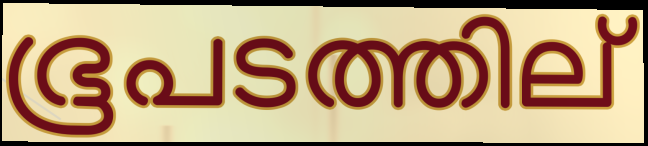
ഭൂപടത്തില്